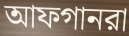
আফগানরা